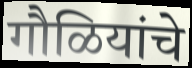
गौळियांचे